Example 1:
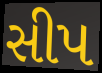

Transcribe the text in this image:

સીપ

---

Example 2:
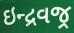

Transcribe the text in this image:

ઇન્દ્રવજ્ર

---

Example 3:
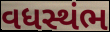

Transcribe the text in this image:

વધસ્થંભ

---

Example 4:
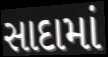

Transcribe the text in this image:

સાદામાં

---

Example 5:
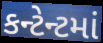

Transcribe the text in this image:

કન્ટેન્ટમાં